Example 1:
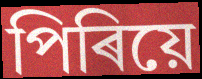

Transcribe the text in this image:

পিৰিয়ে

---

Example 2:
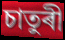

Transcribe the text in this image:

চাতুৰী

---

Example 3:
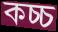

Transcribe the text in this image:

কচ্চ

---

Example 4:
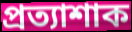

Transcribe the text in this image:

প্ৰত্যাশাক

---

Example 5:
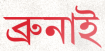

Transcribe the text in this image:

ব্ৰুনাই